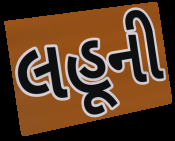
લહૂની